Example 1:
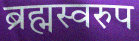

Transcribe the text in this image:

ब्रह्मस्वरुप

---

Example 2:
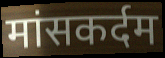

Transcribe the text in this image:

मांसकर्दम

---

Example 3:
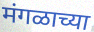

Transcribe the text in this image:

मंगळाच्या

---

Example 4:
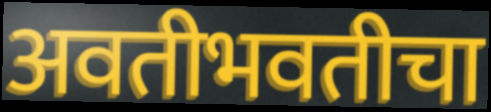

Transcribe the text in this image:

अवतीभवतीचा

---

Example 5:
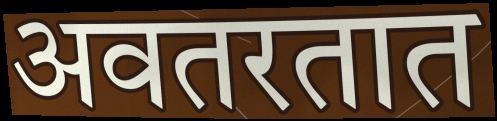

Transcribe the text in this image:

अवतरतात